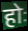
होः